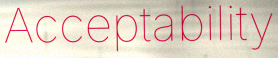
Acceptability